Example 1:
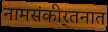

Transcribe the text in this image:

नामसंकीर्तनात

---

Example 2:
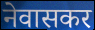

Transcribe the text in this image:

नेवासकर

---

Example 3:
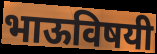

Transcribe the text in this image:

भाऊविषयी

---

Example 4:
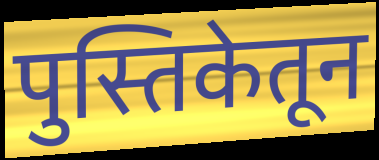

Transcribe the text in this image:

पुस्तिकेतून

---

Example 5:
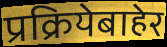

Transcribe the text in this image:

प्रक्रियेबाहेर